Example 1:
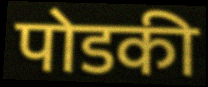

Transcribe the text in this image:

पोडकी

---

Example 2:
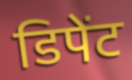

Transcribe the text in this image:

डिपेंट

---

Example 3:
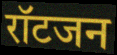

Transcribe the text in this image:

रॉटजन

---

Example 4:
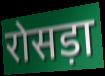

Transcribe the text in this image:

रोसड़ा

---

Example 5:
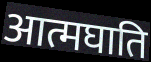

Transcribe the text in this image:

आत्मघाति